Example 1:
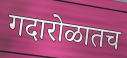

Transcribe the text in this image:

गदारोळातच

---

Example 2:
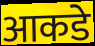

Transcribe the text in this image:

आकडे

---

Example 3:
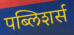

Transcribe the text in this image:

पब्लिशर्स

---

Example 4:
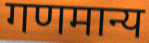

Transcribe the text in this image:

गणमान्य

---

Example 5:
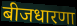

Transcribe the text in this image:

बीजधारणा